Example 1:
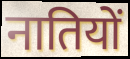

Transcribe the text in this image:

नातियों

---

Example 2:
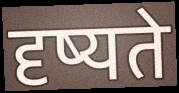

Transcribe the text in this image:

दृष्यते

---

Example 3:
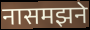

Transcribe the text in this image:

नासमझने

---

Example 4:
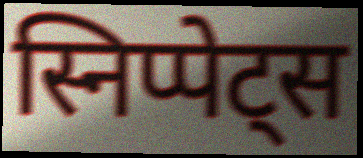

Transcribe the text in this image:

स्निप्पेट्स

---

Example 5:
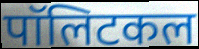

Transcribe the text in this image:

पॉलिटकल